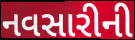
નવસારીની